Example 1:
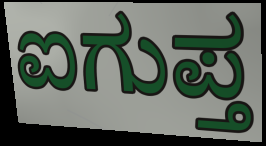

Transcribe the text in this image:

ಐಗುಪ್ತ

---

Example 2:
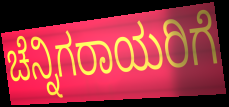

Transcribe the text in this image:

ಚೆನ್ನಿಗರಾಯರಿಗೆ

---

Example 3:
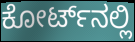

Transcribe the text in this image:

ಕೋರ್ಟ್‌ನಲ್ಲಿ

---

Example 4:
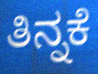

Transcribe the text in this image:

ತಿನ್ನಕೆ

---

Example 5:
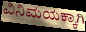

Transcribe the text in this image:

ವಿನಿಮಯಕ್ಕಾಗಿ